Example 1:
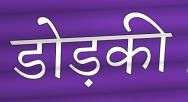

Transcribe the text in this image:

डोड़की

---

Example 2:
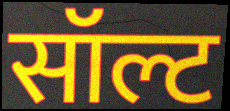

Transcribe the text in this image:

सॉल्‍ट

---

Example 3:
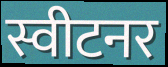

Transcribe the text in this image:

स्वीटनर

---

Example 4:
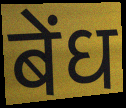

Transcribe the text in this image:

बेंध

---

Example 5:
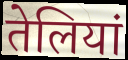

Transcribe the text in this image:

तेलियां